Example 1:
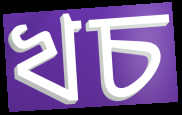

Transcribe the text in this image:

খচ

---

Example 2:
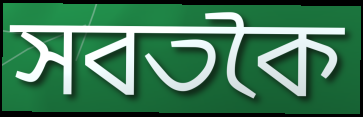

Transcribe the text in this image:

সবতকৈ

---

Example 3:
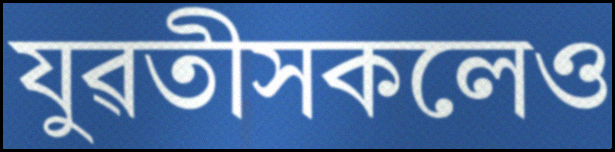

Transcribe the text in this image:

যুৱতীসকলেও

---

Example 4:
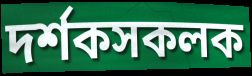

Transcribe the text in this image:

দৰ্শকসকলক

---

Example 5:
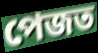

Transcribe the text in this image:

পেজত